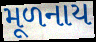
મૂળનાય